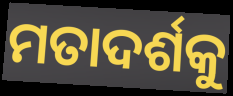
ମତାଦର୍ଶକୁ